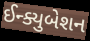
ઈન્ક્યુબેશન